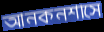
আনকনশাসে